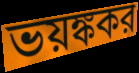
ভয়ঙ্ককর